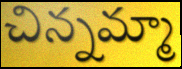
చిన్నమ్మా